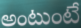
అంటుంటే